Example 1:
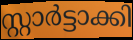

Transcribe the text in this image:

സ്റ്റാർട്ടാക്കി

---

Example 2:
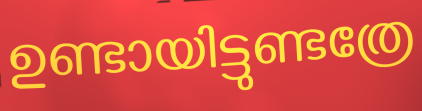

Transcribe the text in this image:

ഉണ്ടായിട്ടുണ്ടത്രേ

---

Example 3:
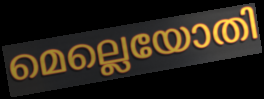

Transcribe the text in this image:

മെല്ലെയോതി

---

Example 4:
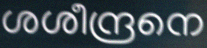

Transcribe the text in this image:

ശശീന്ദ്രനെ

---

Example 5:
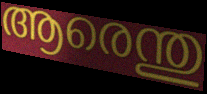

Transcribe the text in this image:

ആരെന്തു